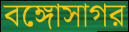
বঙ্গোসাগর